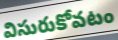
విసురుకోవటం